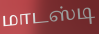
மாடஸ்டி